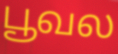
பூவல